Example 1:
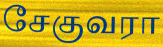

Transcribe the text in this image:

சேகுவரா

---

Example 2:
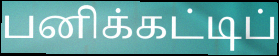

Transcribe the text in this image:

பனிக்கட்டிப்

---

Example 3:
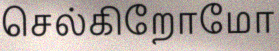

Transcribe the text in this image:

செல்கிறோமோ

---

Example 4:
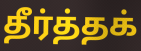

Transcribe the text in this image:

தீர்த்தக்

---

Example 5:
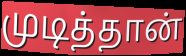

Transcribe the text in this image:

முடித்தான்